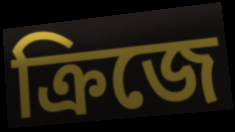
ক্রিজে